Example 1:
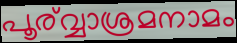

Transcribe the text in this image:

പൂര്വ്വാശ്രമനാമം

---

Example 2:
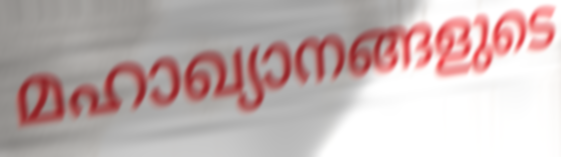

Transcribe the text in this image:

മഹാഖ്യാനങ്ങളുടെ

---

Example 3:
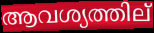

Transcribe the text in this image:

ആവശ്യത്തില്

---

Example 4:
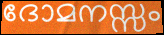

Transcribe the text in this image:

ദോമനസ്സം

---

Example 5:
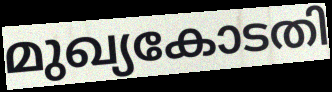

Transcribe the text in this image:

മുഖ്യകോടതി